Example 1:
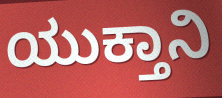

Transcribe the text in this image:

ಯುಕ್ತಾನಿ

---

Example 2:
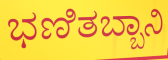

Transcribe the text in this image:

ಭಣಿತಬ್ಬಾನಿ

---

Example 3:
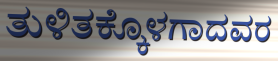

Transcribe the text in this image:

ತುಳಿತಕ್ಕೊಳಗಾದವರ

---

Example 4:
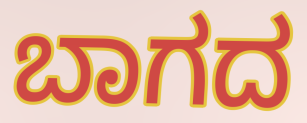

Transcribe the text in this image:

ಬಾಗದ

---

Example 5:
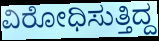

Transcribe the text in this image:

ವಿರೋಧಿಸುತ್ತಿದ್ದ